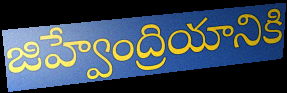
జిహ్వేంద్రియానికి